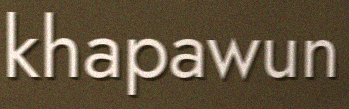
khapawun